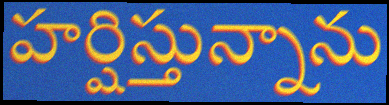
హర్షిస్తున్నాను